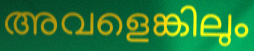
അവളെങ്കിലും